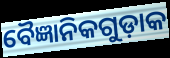
ବୈଜ୍ଞାନିକଗୁଡ଼ାକ